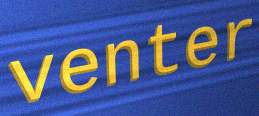
venter